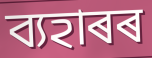
ব্যহাৰৰ